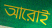
আরোই